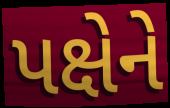
પક્ષેને